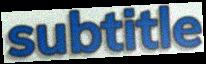
subtitle